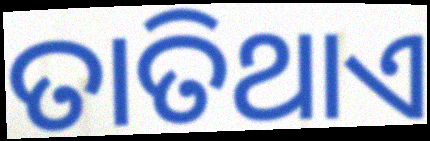
ତାତିଥାଏ